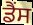
ਡੈਂਸ